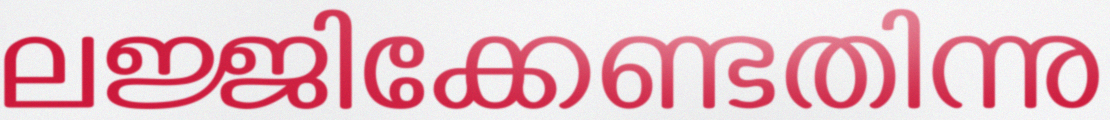
ലജ്ജിക്കേണ്ടതിന്നു